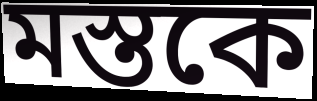
মস্তকে